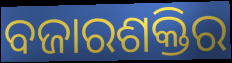
ବଜାରଶକ୍ତିର